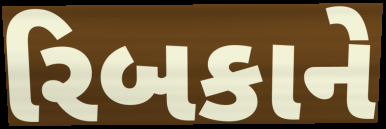
રિબકાને